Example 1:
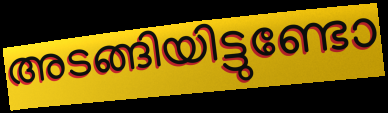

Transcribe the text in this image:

അടങ്ങിയിട്ടുണ്ടോ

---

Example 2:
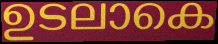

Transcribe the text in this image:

ഉടലാകെ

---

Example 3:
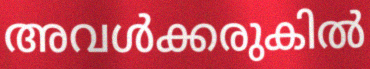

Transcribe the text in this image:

അവൾക്കരുകിൽ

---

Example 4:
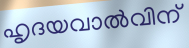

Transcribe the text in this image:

ഹൃദയവാൽവിന്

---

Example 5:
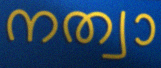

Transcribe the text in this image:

നത്വാ